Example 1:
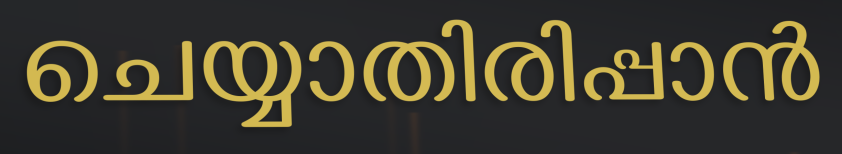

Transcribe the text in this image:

ചെയ്യാതിരിപ്പാൻ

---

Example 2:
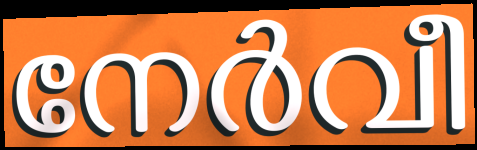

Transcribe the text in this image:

നേർവീ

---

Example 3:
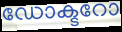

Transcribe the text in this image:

ഡോക്ടറോ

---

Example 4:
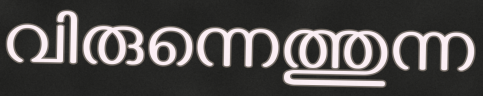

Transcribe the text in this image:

വിരുന്നെത്തുന്ന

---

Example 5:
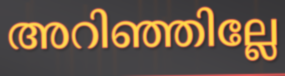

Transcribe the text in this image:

അറിഞ്ഞില്ലേ